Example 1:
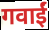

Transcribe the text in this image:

गवाईं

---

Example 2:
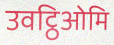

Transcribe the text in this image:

उवट्ठिओमि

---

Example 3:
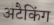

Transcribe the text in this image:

अटैकिंग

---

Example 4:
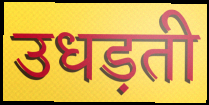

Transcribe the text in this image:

उधड़ती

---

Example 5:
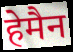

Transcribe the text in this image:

हेमैन